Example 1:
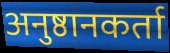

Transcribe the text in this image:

अनुष्ठानकर्ता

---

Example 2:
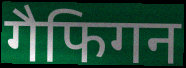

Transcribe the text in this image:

गैफिगन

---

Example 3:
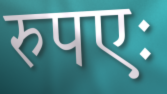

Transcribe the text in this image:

रुपएः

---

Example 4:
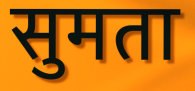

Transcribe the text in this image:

सुमता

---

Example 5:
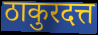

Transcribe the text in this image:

ठाकुरदत्त